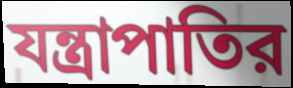
যন্ত্রাপাতির